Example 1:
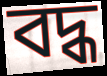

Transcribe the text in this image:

বদ্ধ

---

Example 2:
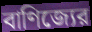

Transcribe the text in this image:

বাণিজ্যের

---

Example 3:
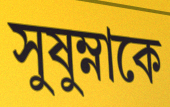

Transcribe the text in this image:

সুষুম্নাকে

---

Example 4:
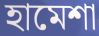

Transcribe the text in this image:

হামেশা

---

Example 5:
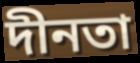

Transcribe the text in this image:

দীনতা